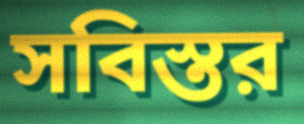
সবিস্তর